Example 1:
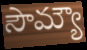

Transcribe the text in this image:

సౌమ్యౌ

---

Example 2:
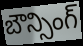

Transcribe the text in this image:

బౌన్సింగ్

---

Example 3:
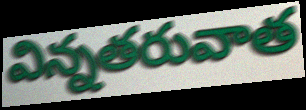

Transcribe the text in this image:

విన్నతరువాత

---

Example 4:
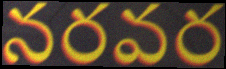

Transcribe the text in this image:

నరవర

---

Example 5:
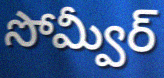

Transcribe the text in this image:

సోమ్వీర్